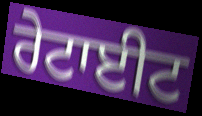
ਰੇਟਾਈਟ